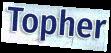
Topher